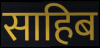
साहिब